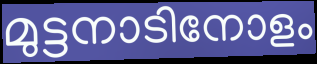
മുട്ടനാടിനോളം